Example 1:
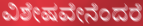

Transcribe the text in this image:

ವಿಶೇಷವೇನೆಂದರೆ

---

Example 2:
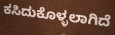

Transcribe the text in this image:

ಕಸಿದುಕೊಳ್ಳಲಾಗಿದೆ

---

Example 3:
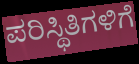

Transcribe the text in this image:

ಪರಿಸ್ಥಿತಿಗಳಿಗೆ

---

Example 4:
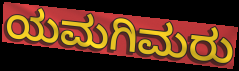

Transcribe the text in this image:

ಯಮಗಿಮರು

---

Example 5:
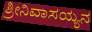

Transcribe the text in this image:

ಶ್ರೀನಿವಾಸಯ್ಯನ